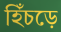
হিঁচড়ে